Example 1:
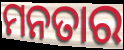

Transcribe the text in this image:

ମନତାର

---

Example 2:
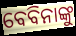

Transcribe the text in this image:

ବେବିନାଙ୍କୁ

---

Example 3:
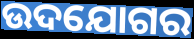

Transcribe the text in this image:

ଉଦଯୋଗର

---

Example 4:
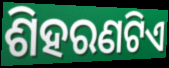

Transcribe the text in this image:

ଶିହରଣଟିଏ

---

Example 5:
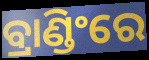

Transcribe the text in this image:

ବ୍ରାଣ୍ଡିଂରେ